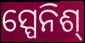
ସ୍ପେନିଶ୍